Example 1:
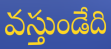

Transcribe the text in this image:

వస్తుండేది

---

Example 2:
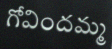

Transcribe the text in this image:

గోవిందమ్మ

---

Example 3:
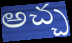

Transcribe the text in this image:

అచ్చ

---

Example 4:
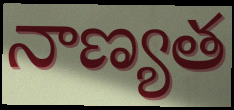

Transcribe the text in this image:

నాణ్యత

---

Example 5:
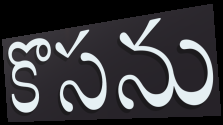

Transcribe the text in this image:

కొసను